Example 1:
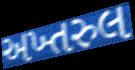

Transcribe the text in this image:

અખ્તરુલ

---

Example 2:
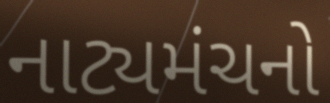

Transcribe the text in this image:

નાટ્યમંચનો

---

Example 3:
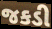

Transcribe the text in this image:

જકડી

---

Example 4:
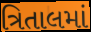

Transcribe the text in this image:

ત્રિતાલમાં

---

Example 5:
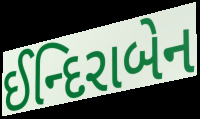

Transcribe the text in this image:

ઈન્દિરાબેન